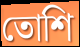
তোশি